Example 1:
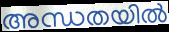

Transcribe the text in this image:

അന്ധതയിൽ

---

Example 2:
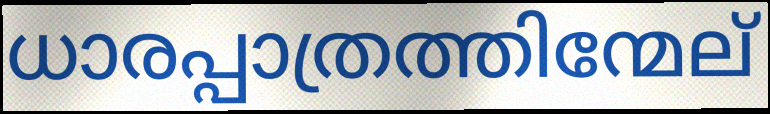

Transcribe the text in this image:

ധാരപ്പാത്രത്തിന്മേല്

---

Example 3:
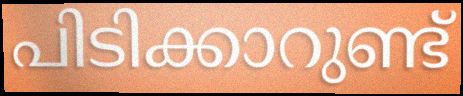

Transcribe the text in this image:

പിടിക്കാറുണ്ട്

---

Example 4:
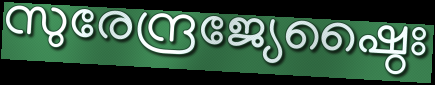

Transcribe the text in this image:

സുരേന്ദ്രജ്യേഷ്ഠൈഃ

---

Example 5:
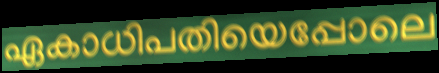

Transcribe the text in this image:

ഏകാധിപതിയെപ്പോലെ